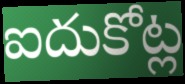
ఐదుకోట్ల